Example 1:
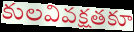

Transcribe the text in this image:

కులవివక్షతకూ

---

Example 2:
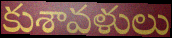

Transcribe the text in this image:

కుశావళులు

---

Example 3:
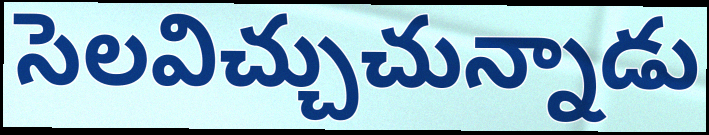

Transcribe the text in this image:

సెలవిచ్చుచున్నాడు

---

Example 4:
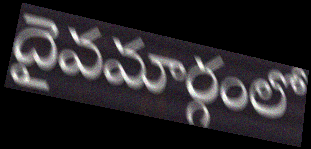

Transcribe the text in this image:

దైవమార్గంలో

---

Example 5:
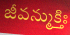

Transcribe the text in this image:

జీవన్ముక్తిః